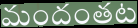
మందంతట